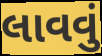
લાવવું